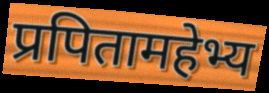
प्रपितामहेभ्य